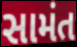
સામંત